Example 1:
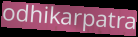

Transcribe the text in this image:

odhikarpatra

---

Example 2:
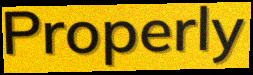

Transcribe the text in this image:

Properly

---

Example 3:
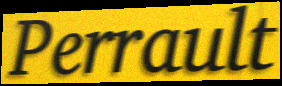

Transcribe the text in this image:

Perrault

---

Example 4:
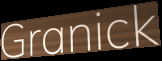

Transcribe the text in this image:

Granick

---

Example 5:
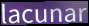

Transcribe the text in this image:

lacunar